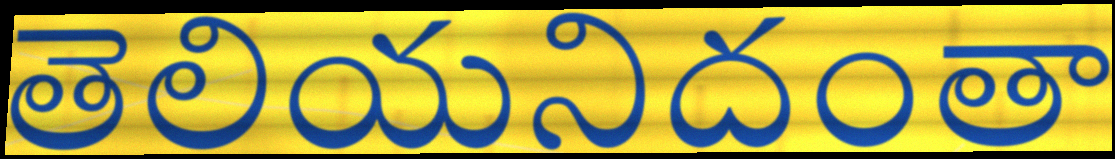
తెలియనిదంతా